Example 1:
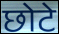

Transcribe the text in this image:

छोटे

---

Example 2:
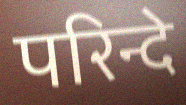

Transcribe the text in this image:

परिन्दे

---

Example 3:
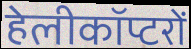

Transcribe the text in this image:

हेलीकॉप्‍टरों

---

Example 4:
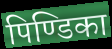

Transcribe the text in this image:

पिण्डिका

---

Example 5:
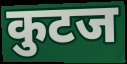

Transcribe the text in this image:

कुटज